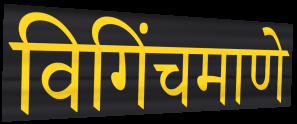
विगिंचमाणे